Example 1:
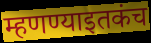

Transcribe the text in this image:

म्हणण्याइतकंच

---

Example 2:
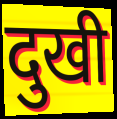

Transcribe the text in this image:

दुखी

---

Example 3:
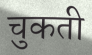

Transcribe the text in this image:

चुकती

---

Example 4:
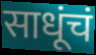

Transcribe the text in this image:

साधूंचं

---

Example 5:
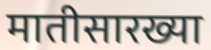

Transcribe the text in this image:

मातीसारख्या